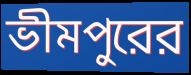
ভীমপুরের